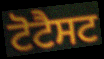
ਟੋਟੈਸਟ